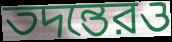
তদন্তেরও